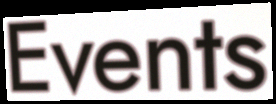
Events